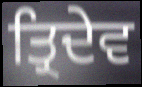
ਤ੍ਰਿਦੇਵ